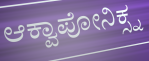
ಆಕ್ವಾಪೋನಿಕ್ಸ್ನ